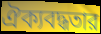
ঐক্যবদ্ধতার